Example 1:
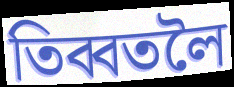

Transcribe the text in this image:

তিব্বতলৈ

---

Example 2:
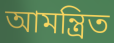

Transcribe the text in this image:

আমন্ত্ৰিত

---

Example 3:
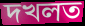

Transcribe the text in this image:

দখলত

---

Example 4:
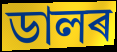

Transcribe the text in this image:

ডালৰ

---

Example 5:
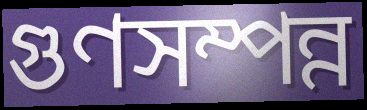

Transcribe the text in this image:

গুণসম্পন্ন